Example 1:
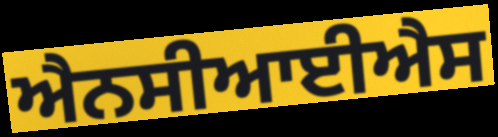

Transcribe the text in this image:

ਐਨਸੀਆਈਐਸ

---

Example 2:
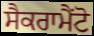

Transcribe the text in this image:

ਸੈਕਰਾਮੈਂਟੋ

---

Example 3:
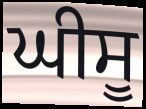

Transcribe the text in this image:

ਘੀਸੂ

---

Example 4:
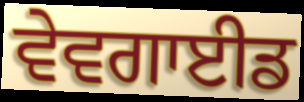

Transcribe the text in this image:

ਵੇਵਗਾਈਡ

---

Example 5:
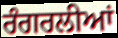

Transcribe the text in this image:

ਰੰਗਰਲੀਆਂ